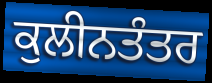
ਕੁਲੀਨਤੰਤਰ